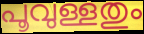
പൂവുള്ളതും